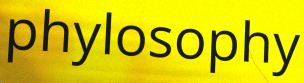
phylosophy